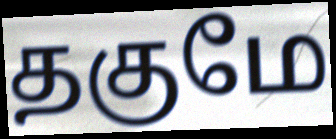
தகுமே